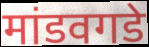
मांडवगडे